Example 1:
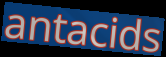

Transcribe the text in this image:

antacids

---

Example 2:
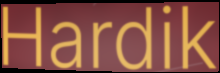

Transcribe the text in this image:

Hardik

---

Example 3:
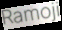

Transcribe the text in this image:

Ramoji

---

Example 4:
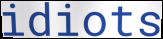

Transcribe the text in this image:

idiots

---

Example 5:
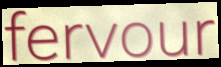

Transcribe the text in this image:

fervour